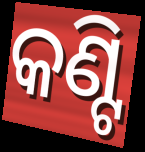
କଣ୍ଟି